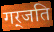
गर्जति